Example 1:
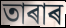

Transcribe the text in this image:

তাৰাৰ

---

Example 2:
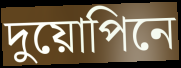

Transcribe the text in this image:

দুয়োপিনে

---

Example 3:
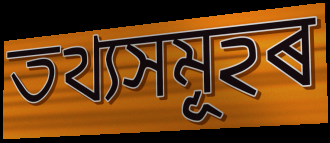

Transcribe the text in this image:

তথ্যসমূহৰ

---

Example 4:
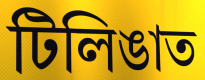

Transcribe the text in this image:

টিলিঙাত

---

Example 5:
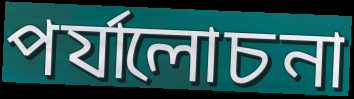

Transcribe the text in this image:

পৰ্যালোচনা